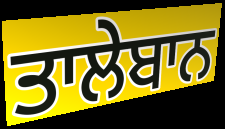
ਤਾਲੇਬਾਨ